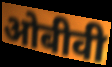
ओबीवी